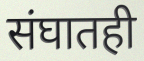
संघातही